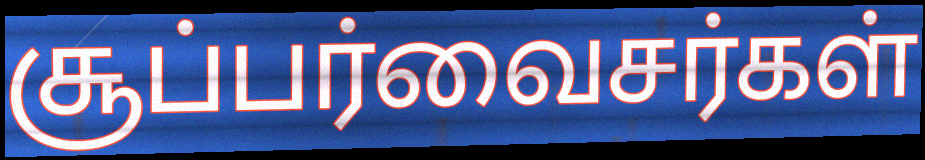
சூப்பர்வைசர்கள்